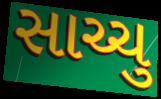
સાચ્ચુ